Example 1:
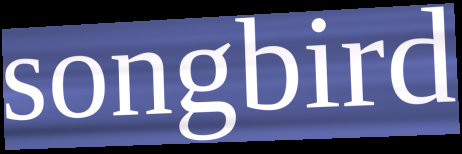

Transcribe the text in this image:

songbird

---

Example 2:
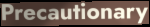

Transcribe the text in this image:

Precautionary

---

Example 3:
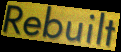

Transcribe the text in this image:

Rebuilt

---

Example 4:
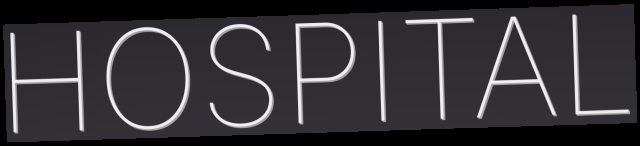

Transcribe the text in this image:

HOSPITAL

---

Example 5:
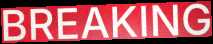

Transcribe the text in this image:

BREAKING